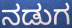
ನಡುಗ